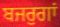
ਬਜਰੁਗਾਂ